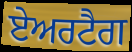
ਏਅਰਟੈਗ